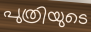
പുത്രിയുടെ